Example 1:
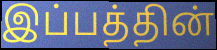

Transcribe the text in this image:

இப்பத்தின்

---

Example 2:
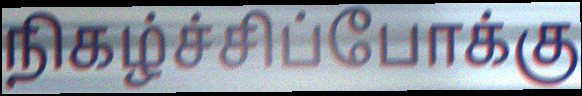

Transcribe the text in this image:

நிகழ்ச்சிப்போக்கு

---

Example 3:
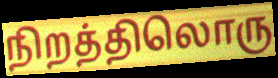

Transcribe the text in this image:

நிறத்திலொரு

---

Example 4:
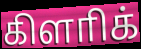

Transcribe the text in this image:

கிளரிக்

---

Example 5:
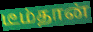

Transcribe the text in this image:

டீம்தான்